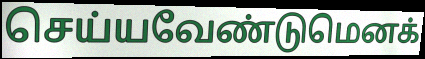
செய்யவேண்டுமெனக்